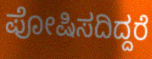
ಪೋಷಿಸದಿದ್ದರೆ